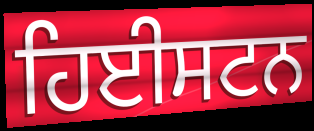
ਹਿਈਸਟਨ